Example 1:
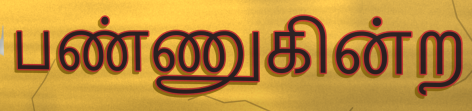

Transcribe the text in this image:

பண்ணுகின்ற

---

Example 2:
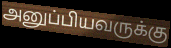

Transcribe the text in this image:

அனுப்பியவருக்கு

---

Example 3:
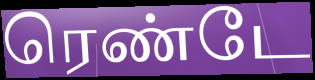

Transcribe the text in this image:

ரெண்டே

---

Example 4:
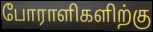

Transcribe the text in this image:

போராளிகளிற்கு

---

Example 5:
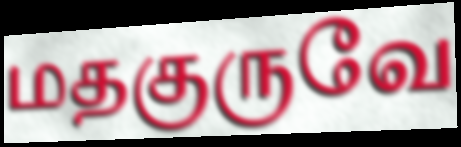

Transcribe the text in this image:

மதகுருவே